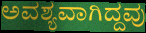
ಅವಶ್ಯವಾಗಿದ್ದವು